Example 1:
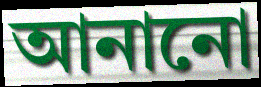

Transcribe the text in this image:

আনানো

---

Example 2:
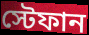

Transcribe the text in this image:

স্টেফান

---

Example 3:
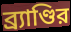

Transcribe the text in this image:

ব্র্যাণ্ডির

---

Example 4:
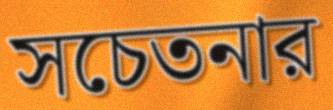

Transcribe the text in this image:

সচেতনার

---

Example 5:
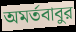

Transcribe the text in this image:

অমর্তবাবুর